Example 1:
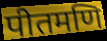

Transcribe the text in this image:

पीतमणि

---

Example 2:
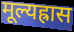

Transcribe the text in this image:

मूल्यह्रास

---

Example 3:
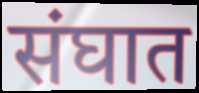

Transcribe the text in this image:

संघात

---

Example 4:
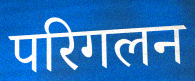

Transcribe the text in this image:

परिगलन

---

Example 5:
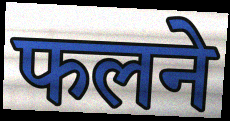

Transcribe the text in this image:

फलने